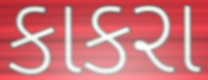
કાકરા